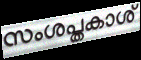
സംശപ്തകാശ്